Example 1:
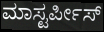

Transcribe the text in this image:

ಮಾಸ್ಟರ್ಪೀಸ್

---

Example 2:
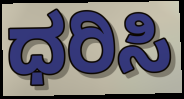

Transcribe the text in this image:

ಧರಿಸಿ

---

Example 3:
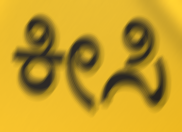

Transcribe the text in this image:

ಕೀಸಿ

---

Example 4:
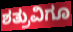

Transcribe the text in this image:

ಶತ್ರುವಿಗೂ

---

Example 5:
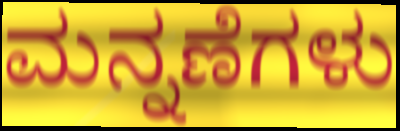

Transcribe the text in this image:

ಮನ್ನಣೆಗಳು